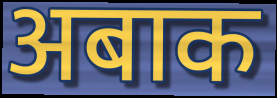
अबाक